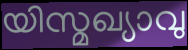
യിസ്മഖ്യാവു